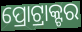
ପ୍ରୋଟ୍ରାକ୍ଟର